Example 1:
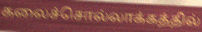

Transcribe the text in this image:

கலைச்சொல்லாக்கத்தில்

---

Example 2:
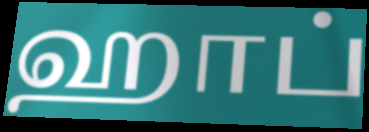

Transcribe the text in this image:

ஹாப்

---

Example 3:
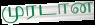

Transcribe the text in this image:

முரடான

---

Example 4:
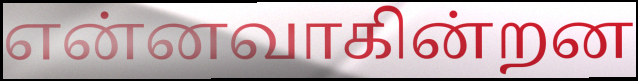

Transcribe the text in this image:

என்னவாகின்றன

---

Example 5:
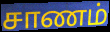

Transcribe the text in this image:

சாணம்